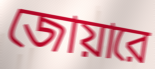
জোয়ারে